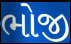
ભોજી